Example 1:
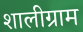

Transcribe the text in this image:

शालीग्राम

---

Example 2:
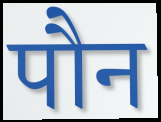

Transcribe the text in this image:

पौन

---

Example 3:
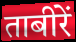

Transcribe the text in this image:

ताबीरें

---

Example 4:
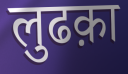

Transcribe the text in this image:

लुढक़ा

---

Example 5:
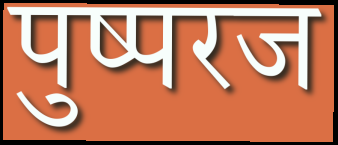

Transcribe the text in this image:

पुष्परज